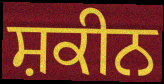
ਸ਼ਕੀਨ